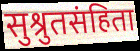
सुश्रुतसंहिता